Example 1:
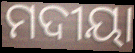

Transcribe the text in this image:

ମଦୀୟା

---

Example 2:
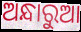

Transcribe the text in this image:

ଅନ୍ଧାରୁଆ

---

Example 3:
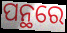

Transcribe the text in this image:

ପନ୍ଥରେ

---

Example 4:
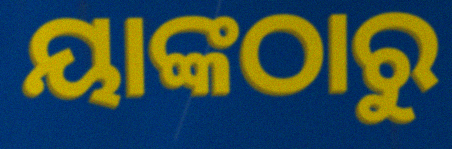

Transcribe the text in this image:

ୟାଙ୍କଠାରୁ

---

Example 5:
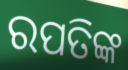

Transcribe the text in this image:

ରପତିଙ୍କ